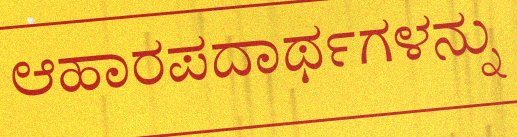
ಆಹಾರಪದಾರ್ಥಗಳನ್ನು